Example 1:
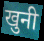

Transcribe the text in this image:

खुनी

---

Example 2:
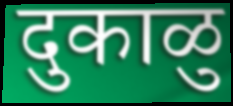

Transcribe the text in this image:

दुकाळु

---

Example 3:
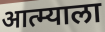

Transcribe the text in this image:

आत्म्याला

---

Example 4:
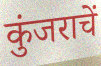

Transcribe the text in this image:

कुंजराचें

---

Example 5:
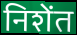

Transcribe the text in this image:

निशेंत